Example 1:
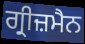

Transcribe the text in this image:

ਗ੍ਰੀਜ਼ਮੈਨ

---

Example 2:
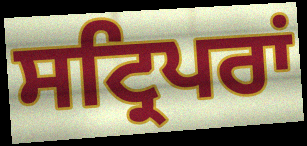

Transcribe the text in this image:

ਸਟ੍ਰਿਪਰਾਂ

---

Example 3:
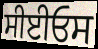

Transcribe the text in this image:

ਸੀਈਓਸ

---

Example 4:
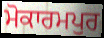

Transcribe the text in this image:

ਮੋਕਾਰਮਪੁਰ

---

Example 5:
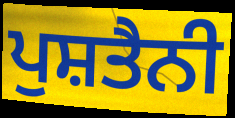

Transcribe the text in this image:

ਪੁਸ਼ਤੈਨੀ